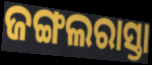
ଜଙ୍ଗଲରାସ୍ତା